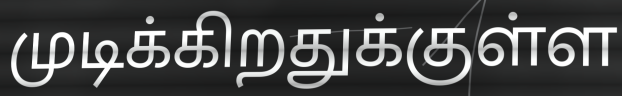
முடிக்கிறதுக்குள்ள